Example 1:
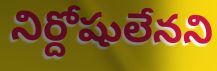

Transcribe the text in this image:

నిర్దోషులేనని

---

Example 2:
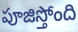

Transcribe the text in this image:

పూజిస్తోంది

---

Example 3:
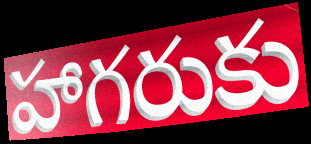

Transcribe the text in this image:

హాగరుకు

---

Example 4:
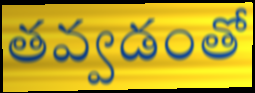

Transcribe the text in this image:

తవ్వడంతో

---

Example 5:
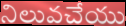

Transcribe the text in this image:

నిలువచేయు